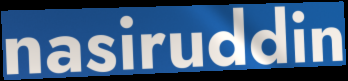
nasiruddin